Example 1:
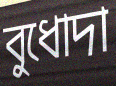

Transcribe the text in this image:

বুধোদা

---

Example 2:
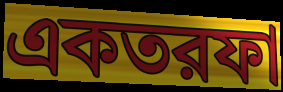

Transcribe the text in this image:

একতরফা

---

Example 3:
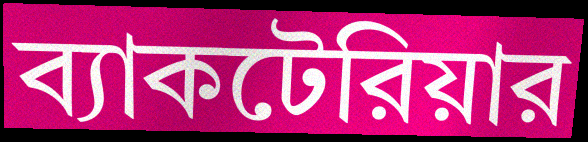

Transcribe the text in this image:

ব্যাকটেরিয়ার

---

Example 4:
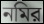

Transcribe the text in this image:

নমির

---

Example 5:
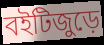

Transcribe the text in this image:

বইটিজুড়ে